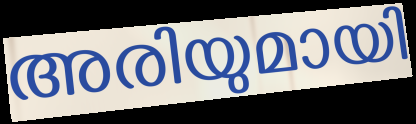
അരിയുമായി